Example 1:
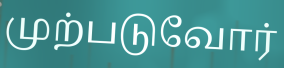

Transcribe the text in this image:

முற்படுவோர்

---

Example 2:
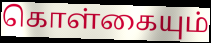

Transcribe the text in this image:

கொள்கையும்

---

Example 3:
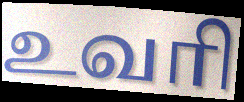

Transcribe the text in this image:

உவரி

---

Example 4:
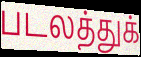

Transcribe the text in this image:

படலத்துக்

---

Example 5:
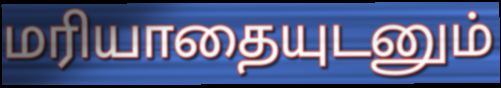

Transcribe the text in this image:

மரியாதையுடனும்